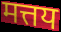
मत्तय